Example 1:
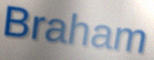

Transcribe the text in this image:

Braham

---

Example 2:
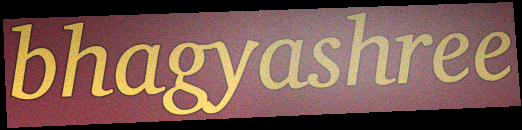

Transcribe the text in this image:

bhagyashree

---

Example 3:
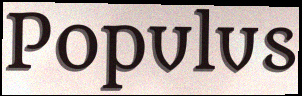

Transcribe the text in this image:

Populus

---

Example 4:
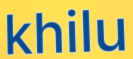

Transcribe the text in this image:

khilu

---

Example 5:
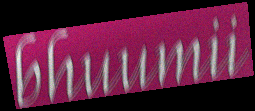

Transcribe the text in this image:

bhuumii